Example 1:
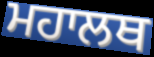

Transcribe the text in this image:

ਮਹਾਲਥ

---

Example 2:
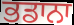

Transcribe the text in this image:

ਭਡਾਨਾ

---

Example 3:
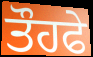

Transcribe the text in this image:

ਤੌਹਫੇ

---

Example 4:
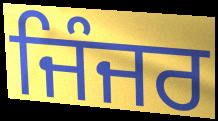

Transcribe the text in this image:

ਜਿੰਜਰ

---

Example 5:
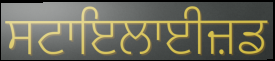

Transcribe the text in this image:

ਸਟਾਇਲਾਈਜ਼ਡ